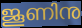
ജൂണിനു